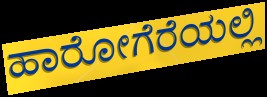
ಹಾರೋಗೆರೆಯಲ್ಲಿ